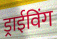
ड्राईविंग